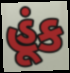
હૂંક